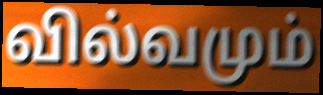
வில்வமும்